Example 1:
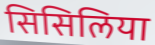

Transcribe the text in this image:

सिसिलिया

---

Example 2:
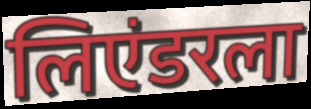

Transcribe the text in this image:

लिएंडरला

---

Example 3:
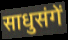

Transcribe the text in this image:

साधुसंगें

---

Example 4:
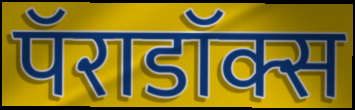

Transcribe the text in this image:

पॅराडॉक्स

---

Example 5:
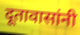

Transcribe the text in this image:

दूतावासांनी